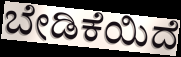
ಬೇಡಿಕೆಯಿದೆ